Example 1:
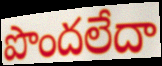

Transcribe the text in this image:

పొందలేదా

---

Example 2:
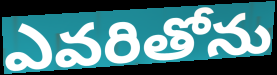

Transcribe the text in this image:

ఎవరితోను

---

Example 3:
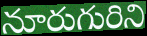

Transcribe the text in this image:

నూరుగురిని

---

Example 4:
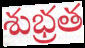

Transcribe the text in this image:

శుభ్రత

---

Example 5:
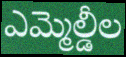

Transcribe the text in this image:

ఎమ్మెల్డీల